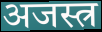
अजस्त्र